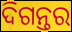
ଦିଗନ୍ତର